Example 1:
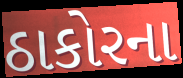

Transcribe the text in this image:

ઠાકોરના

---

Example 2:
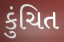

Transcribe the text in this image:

કુંચિત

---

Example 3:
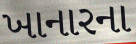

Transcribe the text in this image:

ખાનારના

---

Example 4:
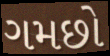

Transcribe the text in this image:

ગમછો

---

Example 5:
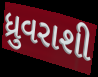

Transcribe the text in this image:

ધ્રુવરાશી